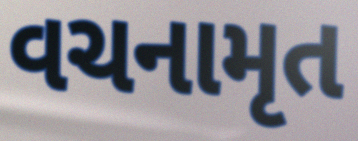
વચનામૃત